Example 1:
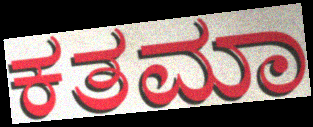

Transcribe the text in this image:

ಕತಮಾ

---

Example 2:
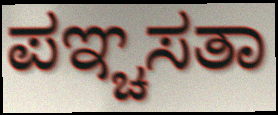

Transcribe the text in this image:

ಪಞ್ಚಸತಾ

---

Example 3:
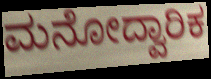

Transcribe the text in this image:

ಮನೋದ್ವಾರಿಕ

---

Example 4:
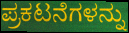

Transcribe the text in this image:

ಪ್ರಕಟನೆಗಳನ್ನು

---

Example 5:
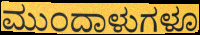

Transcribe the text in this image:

ಮುಂದಾಳುಗಳೂ